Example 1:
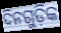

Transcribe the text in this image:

ଦିନଗୁଡ଼ିକ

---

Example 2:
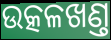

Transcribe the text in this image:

ଉତ୍କଳଖଣ୍ତ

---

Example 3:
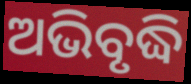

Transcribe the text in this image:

ଅଭିବୃଦ୍ଧି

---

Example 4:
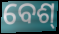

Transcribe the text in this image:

ବେଶ୍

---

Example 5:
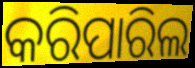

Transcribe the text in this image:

କରିପାରିଲ